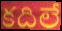
కదిలే